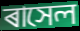
ৰাসেল